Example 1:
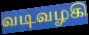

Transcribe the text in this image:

வடிவழகி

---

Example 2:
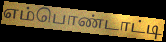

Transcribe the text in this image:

எம்பொண்டாட்டி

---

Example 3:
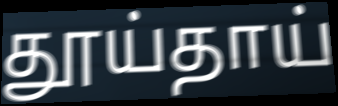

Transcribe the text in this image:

தூய்தாய்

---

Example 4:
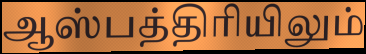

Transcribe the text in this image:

ஆஸ்பத்திரியிலும்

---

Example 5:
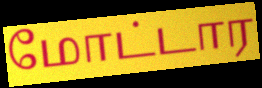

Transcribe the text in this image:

மோட்டார